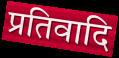
प्रतिवादि